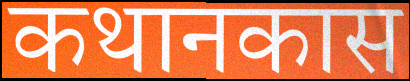
कथानकास